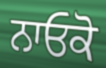
ਨਾਓਕੋ